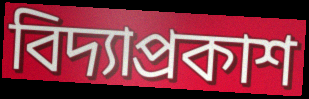
বিদ্যাপ্রকাশ